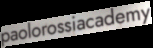
paolorossiacademy